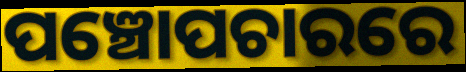
ପଞ୍ଚୋପଚାରରେ